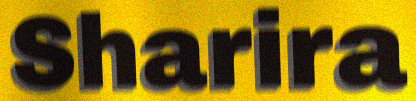
Sharira